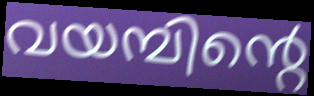
വയമ്പിന്റെ